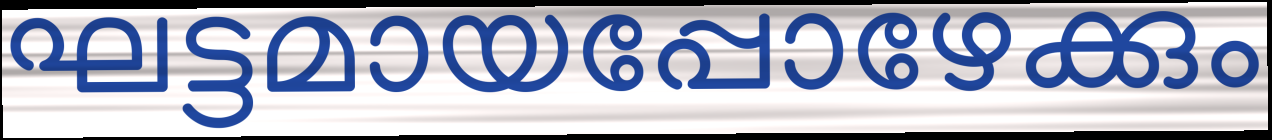
ഘട്ടമായപ്പോഴേക്കും